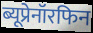
ब्यूप्रेनॉरफिन